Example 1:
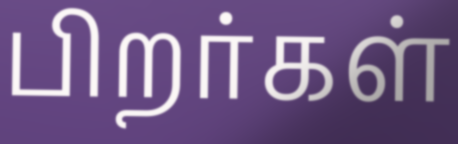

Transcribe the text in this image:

பிறர்கள்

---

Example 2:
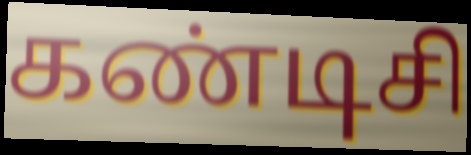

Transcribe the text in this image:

கண்டிசி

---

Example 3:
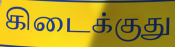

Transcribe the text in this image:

கிடைக்குது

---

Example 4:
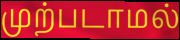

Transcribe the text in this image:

முற்படாமல்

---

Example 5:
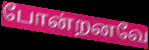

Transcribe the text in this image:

போன்றனவே